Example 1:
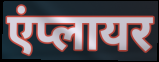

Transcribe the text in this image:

एंप्लायर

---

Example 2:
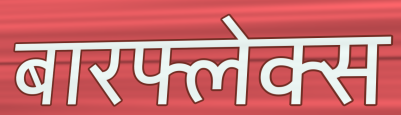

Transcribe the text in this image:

बारफ्लेक्स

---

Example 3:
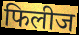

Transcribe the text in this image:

फिलीज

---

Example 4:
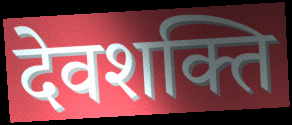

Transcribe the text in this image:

देवशक्ति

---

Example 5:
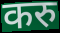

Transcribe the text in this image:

करु